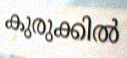
കുരുക്കിൽ